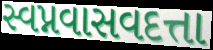
સ્વપ્નવાસવદત્તા